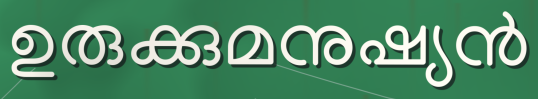
ഉരുക്കുമനുഷ്യൻ